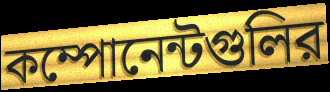
কম্পোনেন্টগুলির